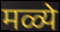
मळ्ये